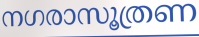
നഗരാസൂത്രണ